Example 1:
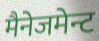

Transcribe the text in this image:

मैनेजमेन्ट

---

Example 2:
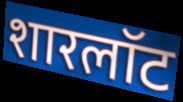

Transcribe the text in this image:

शारलॉट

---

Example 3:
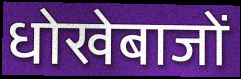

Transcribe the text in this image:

धोखेबाजों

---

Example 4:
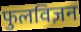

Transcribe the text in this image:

फुलविज़न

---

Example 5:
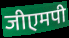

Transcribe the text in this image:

जीएमपी